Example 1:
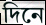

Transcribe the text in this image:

দিনে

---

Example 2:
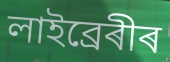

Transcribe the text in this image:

লাইব্ৰেৰীৰ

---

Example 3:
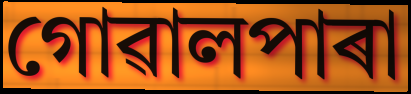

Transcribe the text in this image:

গোৱালপাৰা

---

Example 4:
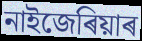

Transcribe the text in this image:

নাইজেৰিয়াৰ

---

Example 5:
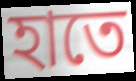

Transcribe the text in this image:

হাতে